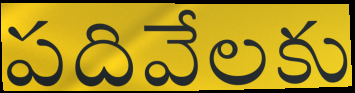
పదివేలకు